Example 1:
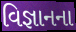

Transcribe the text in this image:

વિજ્ઞાનના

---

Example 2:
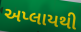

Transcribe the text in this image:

અપ્લાયથી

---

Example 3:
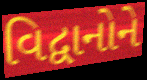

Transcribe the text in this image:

વિદ્વાનોને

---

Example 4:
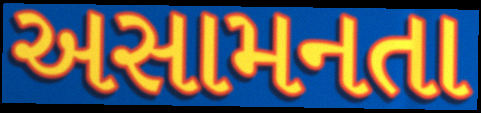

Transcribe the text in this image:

અસામનતા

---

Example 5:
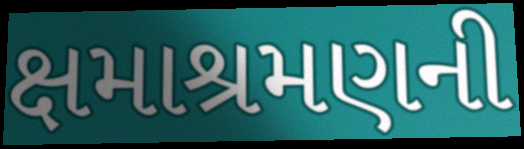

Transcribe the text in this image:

ક્ષમાશ્રમણની